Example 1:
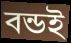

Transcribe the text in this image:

বন্ডই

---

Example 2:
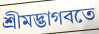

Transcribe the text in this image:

শ্রীমদ্ভাগবতে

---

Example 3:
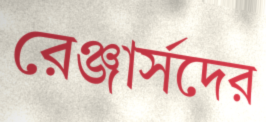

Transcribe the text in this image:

রেঞ্জার্সদের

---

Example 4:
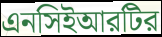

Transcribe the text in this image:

এনসিইআরটির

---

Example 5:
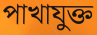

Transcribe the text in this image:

পাখাযুক্ত